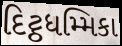
દિટ્ઠધમ્મિકા